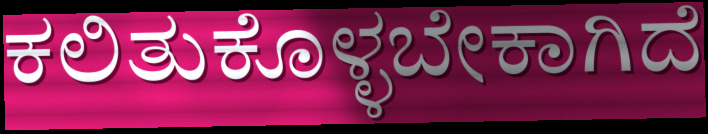
ಕಲಿತುಕೊಳ್ಳಬೇಕಾಗಿದೆ